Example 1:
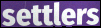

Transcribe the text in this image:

settlers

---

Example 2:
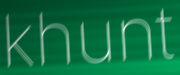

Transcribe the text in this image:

khunt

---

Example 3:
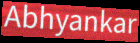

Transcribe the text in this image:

Abhyankar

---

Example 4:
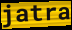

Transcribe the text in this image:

jatra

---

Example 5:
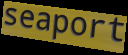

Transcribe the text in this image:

seaport